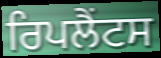
ਰਿਪਲੈਂਟਸ